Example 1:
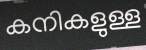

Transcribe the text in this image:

കനികളുള്ള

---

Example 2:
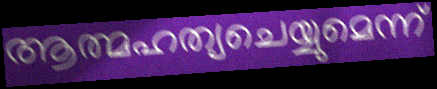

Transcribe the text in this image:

ആത്മഹത്യചെയ്യുമെന്ന്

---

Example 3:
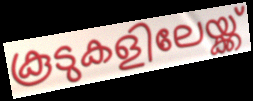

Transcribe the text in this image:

കൂടുകളിലേയ്ക്ക്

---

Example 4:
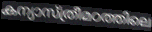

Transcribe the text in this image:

കന്യാസ്ത്രീമഠത്തിലെ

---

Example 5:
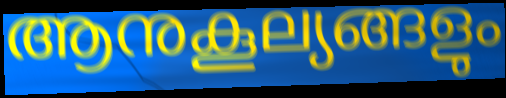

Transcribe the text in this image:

ആനുകൂല്യങ്ങളും